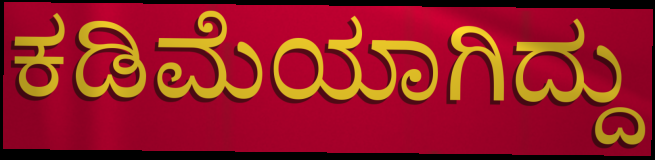
ಕಡಿಮೆಯಾಗಿದ್ದು